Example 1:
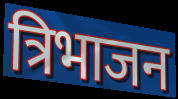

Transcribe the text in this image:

त्रिभाजन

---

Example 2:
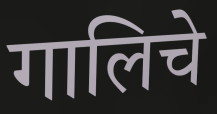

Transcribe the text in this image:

गालिचे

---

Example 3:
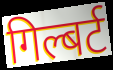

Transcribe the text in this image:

गिल्बर्ट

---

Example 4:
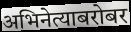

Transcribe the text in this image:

अभिनेत्याबरोबर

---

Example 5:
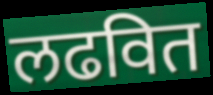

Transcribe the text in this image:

लढवित